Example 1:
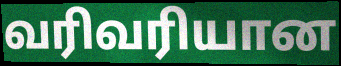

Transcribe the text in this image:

வரிவரியான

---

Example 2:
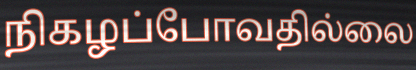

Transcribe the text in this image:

நிகழப்போவதில்லை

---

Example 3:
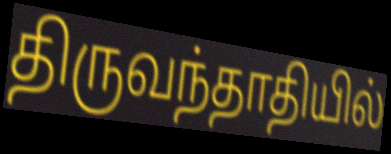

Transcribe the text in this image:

திருவந்தாதியில்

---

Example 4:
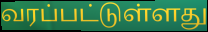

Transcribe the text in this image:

வரப்பட்டுள்ளது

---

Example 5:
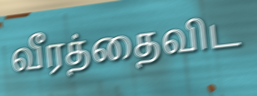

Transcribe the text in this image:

வீரத்தைவிட